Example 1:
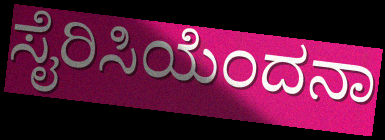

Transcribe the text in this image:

ಸೈರಿಸಿಯೆಂದನಾ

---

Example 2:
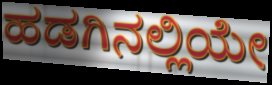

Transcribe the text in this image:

ಹಡಗಿನಲ್ಲಿಯೇ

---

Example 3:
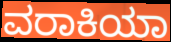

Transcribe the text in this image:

ವರಾಕಿಯಾ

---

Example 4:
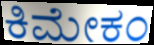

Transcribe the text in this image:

ಕಿಮೇಕಂ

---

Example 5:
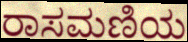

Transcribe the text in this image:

ರಾಸಮಣಿಯ